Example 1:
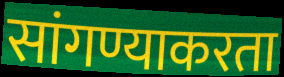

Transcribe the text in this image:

सांगण्याकरता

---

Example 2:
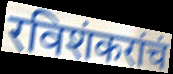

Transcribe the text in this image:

रविशंकरांचं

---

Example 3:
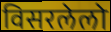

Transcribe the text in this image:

विसरलेलो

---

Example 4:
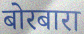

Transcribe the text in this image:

बोरबारा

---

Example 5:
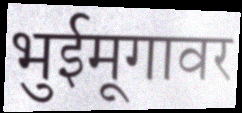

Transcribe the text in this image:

भुईमूगावर